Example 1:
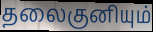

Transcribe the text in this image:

தலைகுனியும்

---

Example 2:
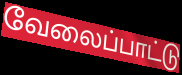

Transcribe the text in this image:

வேலைப்பாட்டு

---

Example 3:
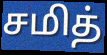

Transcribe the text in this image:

சமித்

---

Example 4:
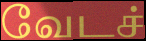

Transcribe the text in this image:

வேடச்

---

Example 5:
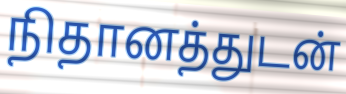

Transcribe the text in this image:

நிதானத்துடன்